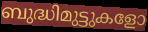
ബുദ്ധിമുട്ടുകളോ